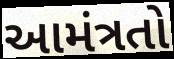
આમંત્રતો